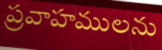
ప్రవాహములను